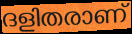
ദളിതരാണ്